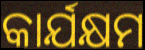
କାର୍ଯକ୍ଷମ